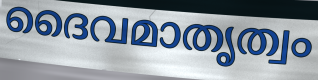
ദൈവമാതൃത്വം